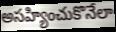
అసహ్యించుకొనేలా